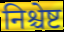
निश्चेष्ट